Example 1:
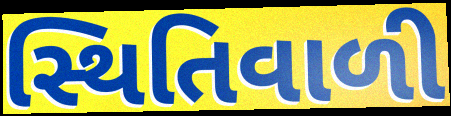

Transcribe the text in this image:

સ્થિતિવાળી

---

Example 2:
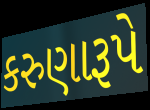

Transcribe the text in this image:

કરુણારૂપે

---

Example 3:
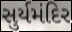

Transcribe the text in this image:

સુર્યમંદિર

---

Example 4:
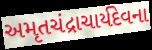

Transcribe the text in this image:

અમૃતચંદ્રાચાર્યદેવના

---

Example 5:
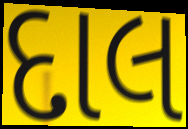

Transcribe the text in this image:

દાલ